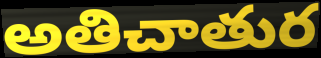
అతిచాతుర